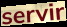
servir